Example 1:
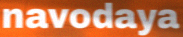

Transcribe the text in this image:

navodaya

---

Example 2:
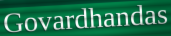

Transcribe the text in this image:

Govardhandas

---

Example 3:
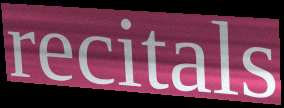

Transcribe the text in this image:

recitals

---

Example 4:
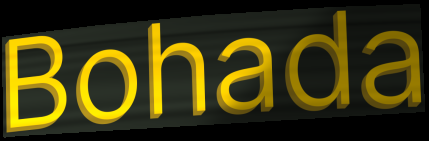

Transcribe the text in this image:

Bohada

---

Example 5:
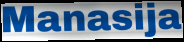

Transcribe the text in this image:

Manasija